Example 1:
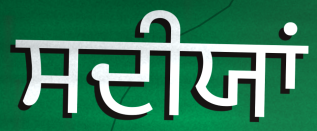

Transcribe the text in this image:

ਸਦੀਯਾਂ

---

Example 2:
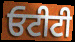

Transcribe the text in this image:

ਓਟੀਟੀ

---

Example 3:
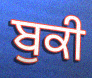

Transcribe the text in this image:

ਬੁਕੀ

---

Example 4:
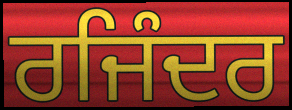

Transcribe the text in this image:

ਰਜਿੰਦਰ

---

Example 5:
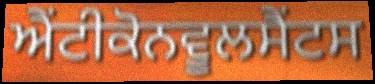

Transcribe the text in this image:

ਐਂਟੀਕੋਨਵੂਲਸੈਂਟਸ